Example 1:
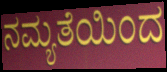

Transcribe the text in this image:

ನಮ್ಯತೆಯಿಂದ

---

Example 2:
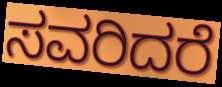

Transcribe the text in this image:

ಸವರಿದರೆ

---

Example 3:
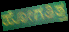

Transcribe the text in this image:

ಹೋಗತಿತ್ತ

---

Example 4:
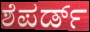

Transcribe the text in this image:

ಶೆಪರ್ಡ್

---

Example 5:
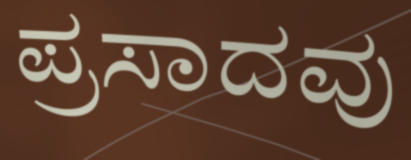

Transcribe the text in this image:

ಪ್ರಸಾದವು